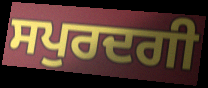
ਸਪੁਰਦਗੀ